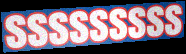
sssssssss